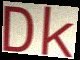
Dk